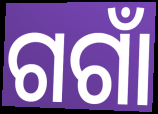
ଗଗାଁ